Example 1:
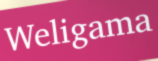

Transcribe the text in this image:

Weligama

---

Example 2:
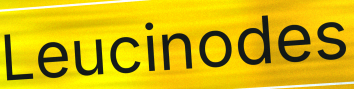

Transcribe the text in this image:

Leucinodes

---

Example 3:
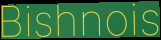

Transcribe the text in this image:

Bishnois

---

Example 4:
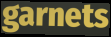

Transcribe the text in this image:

garnets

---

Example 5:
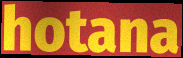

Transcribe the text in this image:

hotana